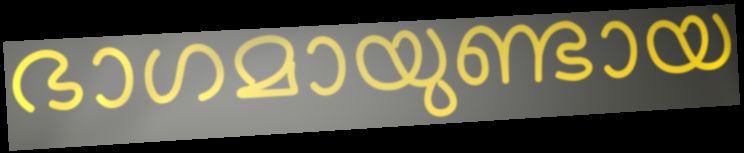
ഭാഗമായുണ്ടായ